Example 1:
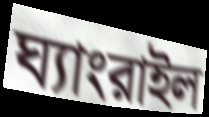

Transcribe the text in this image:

ঘ্যাংরাইল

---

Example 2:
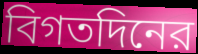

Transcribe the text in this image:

বিগতদিনের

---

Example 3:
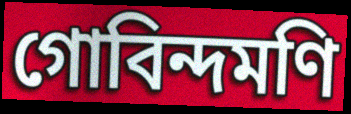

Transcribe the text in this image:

গোবিন্দমণি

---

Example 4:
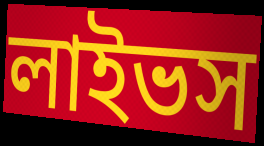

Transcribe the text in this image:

লাইভস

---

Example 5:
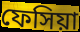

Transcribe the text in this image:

ফেসিয়া